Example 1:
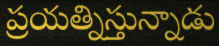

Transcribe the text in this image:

ప్రయత్నిస్తున్నాడు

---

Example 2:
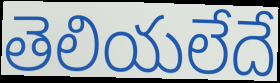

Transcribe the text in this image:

తెలియలేదే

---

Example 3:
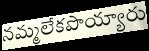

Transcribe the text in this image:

నమ్మలేకపొయ్యారు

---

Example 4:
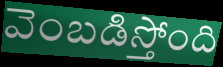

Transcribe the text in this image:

వెంబడిస్తోంది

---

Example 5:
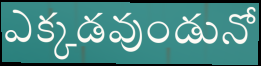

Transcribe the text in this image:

ఎక్కడవుండునో